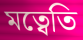
মত্বেতি